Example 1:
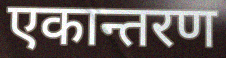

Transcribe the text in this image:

एकान्तरण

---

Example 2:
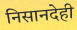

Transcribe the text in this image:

निसानदेही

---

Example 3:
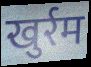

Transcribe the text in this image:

खुर्रम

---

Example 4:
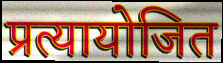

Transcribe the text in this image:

प्रत्यायोजित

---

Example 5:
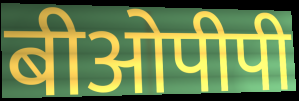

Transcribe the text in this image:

बीओपीपी